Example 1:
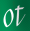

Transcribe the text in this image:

ot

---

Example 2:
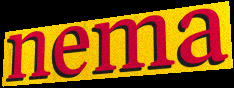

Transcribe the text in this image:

nema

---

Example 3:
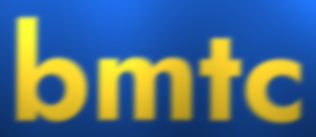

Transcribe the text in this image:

bmtc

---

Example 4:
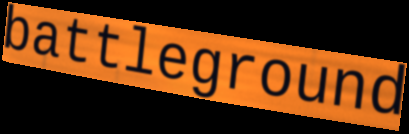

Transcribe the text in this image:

battleground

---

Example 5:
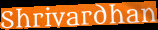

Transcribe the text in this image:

Shrivardhan